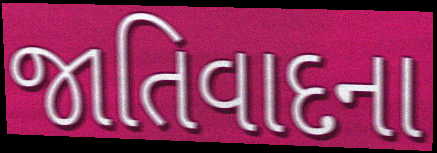
જાતિવાદના